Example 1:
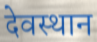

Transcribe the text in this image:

देवस्थान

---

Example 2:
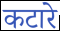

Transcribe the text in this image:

कटारे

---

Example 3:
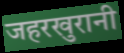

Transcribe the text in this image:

जहरखुरानी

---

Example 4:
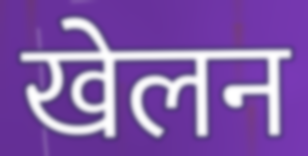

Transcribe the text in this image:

खेलन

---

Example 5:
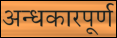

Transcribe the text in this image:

अन्धकारपूर्ण